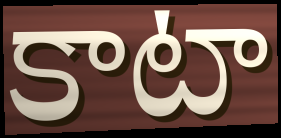
కాటా